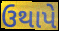
ઉથાપે